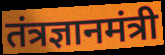
तंत्रज्ञानमंत्री